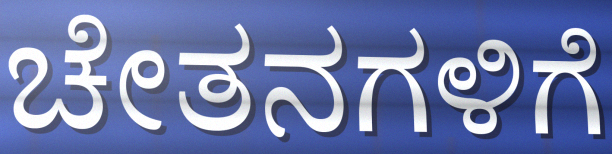
ಚೇತನಗಳಿಗೆ